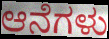
ಆನೆಗಳು